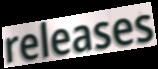
releases